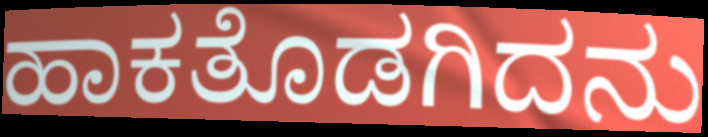
ಹಾಕತೊಡಗಿದನು